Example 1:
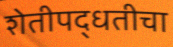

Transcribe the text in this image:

शेतीपद्धतीचा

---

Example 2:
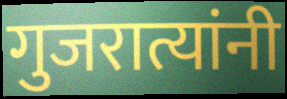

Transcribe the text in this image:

गुजरात्यांनी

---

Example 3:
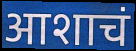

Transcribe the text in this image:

आशाचं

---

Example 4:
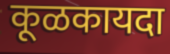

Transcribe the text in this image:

कूळकायदा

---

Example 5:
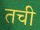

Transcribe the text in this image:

तची